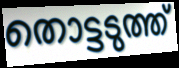
തൊട്ടടുത്ത്